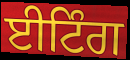
ਈਟਿੰਗ